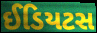
ઈડિયટસ